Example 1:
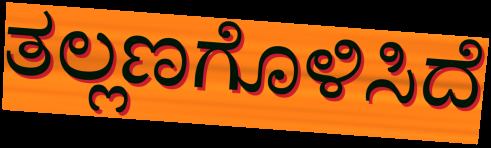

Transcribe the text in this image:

ತಲ್ಲಣಗೊಳಿಸಿದೆ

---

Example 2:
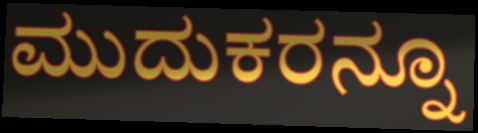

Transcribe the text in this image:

ಮುದುಕರನ್ನೂ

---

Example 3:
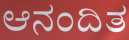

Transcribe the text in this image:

ಆನಂದಿತ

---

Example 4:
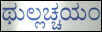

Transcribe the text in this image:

ಥುಲ್ಲಚ್ಚಯಂ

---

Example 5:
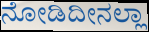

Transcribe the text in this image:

ನೋಡಿದೀನಲ್ಲಾ